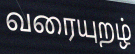
வரையுறழ்